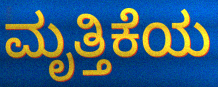
ಮೃತ್ತಿಕೆಯ